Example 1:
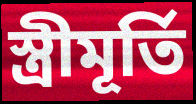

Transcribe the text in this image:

স্ত্রীমূর্তি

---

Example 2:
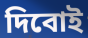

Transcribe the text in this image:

দিবোই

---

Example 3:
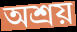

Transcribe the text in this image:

অশ্রয়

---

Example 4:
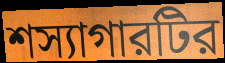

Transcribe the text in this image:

শস্যাগারটির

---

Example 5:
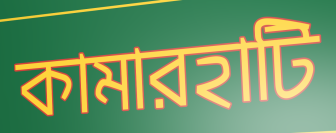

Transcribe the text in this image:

কামারহাটি